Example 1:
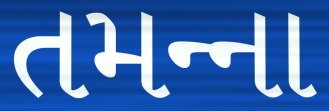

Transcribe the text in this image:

તમન્‍ના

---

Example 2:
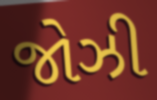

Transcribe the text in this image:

જોઝી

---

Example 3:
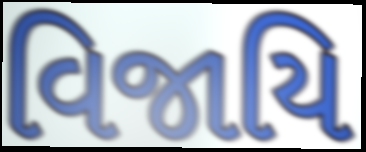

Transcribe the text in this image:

વિજાયિ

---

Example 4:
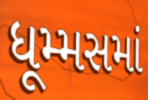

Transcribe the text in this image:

ધૂમ્મસમાં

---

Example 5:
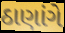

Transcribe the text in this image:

ઠાણાંગે